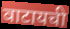
वाटायची